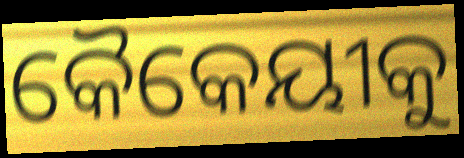
କୈକେୟୀକୁ